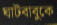
ঘাটবাবুকে